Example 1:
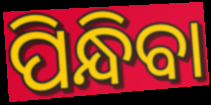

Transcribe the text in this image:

ପିନ୍ଧିବା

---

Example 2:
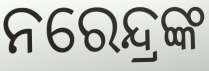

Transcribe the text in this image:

ନରେନ୍ଦ୍ରଙ୍କ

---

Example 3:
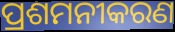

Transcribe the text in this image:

ପ୍ରଶମନୀକରଣ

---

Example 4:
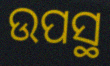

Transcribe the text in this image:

ଉପସ୍ଥ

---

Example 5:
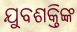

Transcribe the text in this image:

ଯୁବଶକ୍ତିଙ୍କ